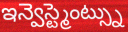
ఇన్వెస్ట్మెంట్స్ను